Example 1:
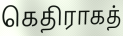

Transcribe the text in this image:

கெதிராகத்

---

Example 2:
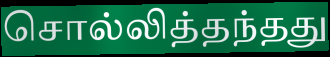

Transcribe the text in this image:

சொல்லித்தந்தது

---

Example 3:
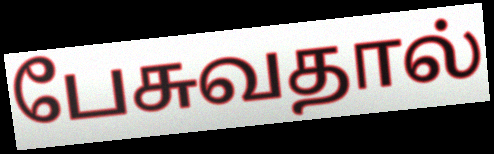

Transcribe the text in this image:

பேசுவதால்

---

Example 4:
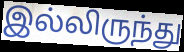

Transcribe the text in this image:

இல்லிருந்து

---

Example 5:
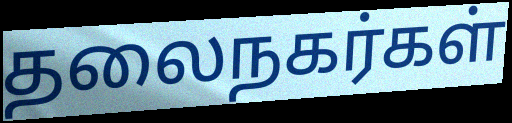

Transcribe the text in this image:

தலைநகர்கள்